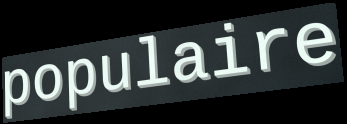
populaire